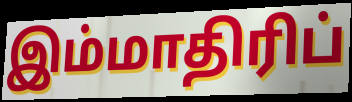
இம்மாதிரிப்